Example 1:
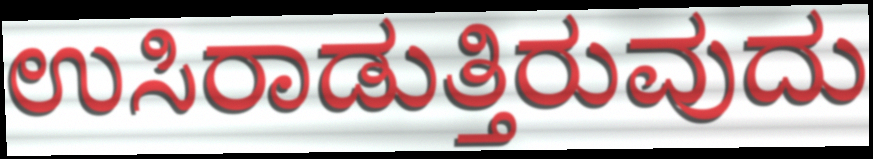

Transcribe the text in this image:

ಉಸಿರಾಡುತ್ತಿರುವುದು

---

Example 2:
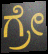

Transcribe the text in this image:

ಗ್ರೇ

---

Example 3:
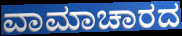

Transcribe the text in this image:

ವಾಮಾಚಾರದ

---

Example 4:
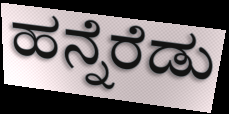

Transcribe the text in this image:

ಹನ್ನೆರೆಡು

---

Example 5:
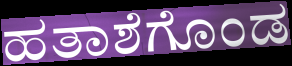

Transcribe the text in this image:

ಹತಾಶೆಗೊಂಡ